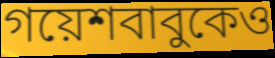
গয়েশবাবুকেও